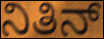
ನಿತಿನ್